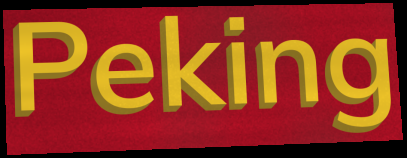
Peking